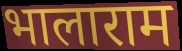
भालाराम